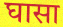
घासा